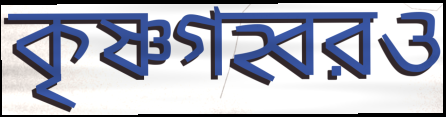
কৃষ্ণগহ্বরও